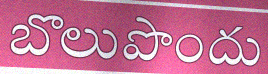
బొలుపొందు